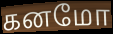
கனமோ